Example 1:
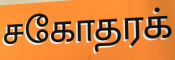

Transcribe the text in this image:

சகோதரக்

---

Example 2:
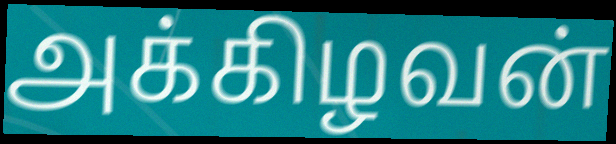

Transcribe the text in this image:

அக்கிழவன்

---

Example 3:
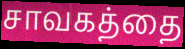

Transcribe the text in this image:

சாவகத்தை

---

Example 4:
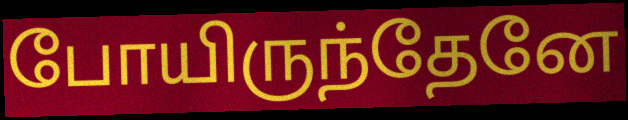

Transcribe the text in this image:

போயிருந்தேனே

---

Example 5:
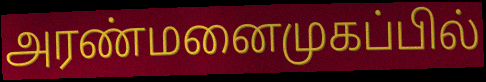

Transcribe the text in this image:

அரண்மனைமுகப்பில்